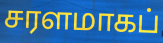
சரளமாகப்